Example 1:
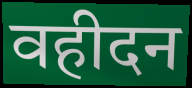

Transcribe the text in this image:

वहीदन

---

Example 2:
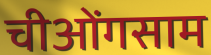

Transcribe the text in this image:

चीओंगसाम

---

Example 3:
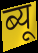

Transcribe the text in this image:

ब्यू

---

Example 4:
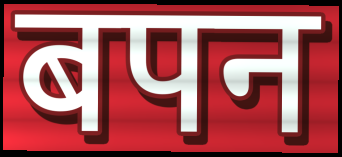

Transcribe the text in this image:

बपन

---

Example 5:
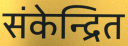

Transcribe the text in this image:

संकेन्द्रित